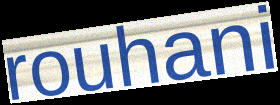
rouhani